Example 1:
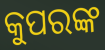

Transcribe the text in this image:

କୁପରଙ୍କ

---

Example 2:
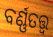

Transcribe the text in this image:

ବର୍ଣ୍ଣତତ୍ତ୍ଵ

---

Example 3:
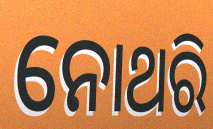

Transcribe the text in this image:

ନୋଥରି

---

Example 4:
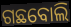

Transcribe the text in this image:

ଗଛବୋଲି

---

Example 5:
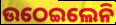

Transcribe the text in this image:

ଉଠେଇଲେନି